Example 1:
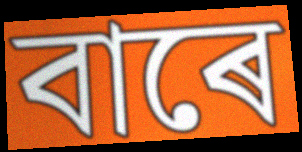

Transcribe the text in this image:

বাৰে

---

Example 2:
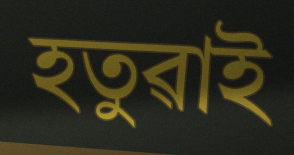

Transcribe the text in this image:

হতুৱাই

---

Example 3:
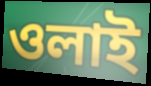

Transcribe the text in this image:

ওলাই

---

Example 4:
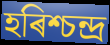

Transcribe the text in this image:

হৰিশ্চন্দ্ৰ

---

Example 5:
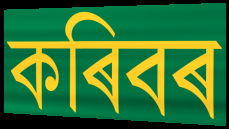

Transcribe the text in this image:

কৰিবৰ